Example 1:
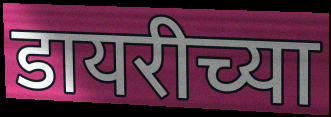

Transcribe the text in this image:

डायरीच्या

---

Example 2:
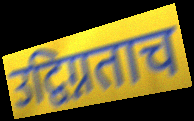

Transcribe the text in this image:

उद्विग्नताच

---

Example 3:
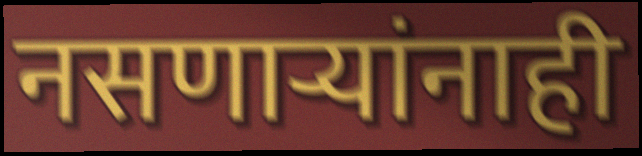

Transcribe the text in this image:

नसणार्‍यांनाही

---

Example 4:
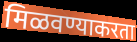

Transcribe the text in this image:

मिळवण्याकरता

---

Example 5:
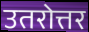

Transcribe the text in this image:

उतरोत्तर